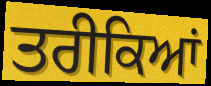
ਤਰੀਕਿਆਂ